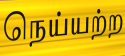
நெய்யற்ற